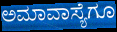
ಅಮಾವಾಸ್ಯೆಗೂ